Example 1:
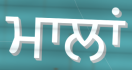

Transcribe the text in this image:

ਮਾਲਾਂ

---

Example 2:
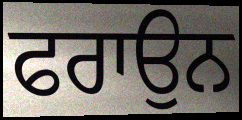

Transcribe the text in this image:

ਫਰਾਉਨ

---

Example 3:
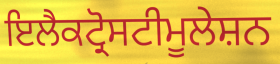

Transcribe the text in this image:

ਇਲੈਕਟ੍ਰੋਸਟੀਮੂਲੇਸ਼ਨ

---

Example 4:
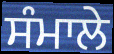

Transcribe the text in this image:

ਸੰਮਾਲੇ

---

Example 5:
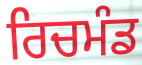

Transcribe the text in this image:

ਰਿਚਮੰਡ